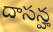
దాసన్హ